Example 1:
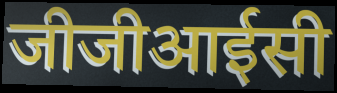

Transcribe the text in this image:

जीजीआईसी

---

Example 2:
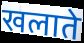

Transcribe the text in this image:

खलाते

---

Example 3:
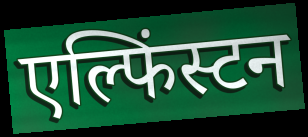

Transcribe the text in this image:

एल्फिंस्टन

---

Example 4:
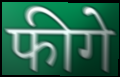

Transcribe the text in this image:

फीगे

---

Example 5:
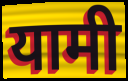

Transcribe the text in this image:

यामी